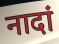
नादां